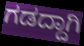
ಗಡದ್ದಾಗಿ